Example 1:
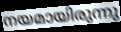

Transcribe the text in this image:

നയമായിരുന്നു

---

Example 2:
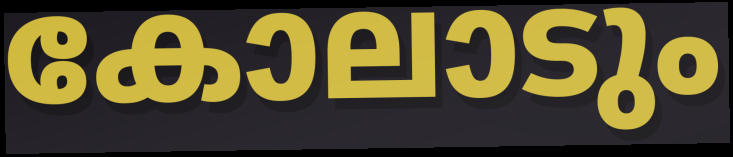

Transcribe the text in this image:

കോലാടും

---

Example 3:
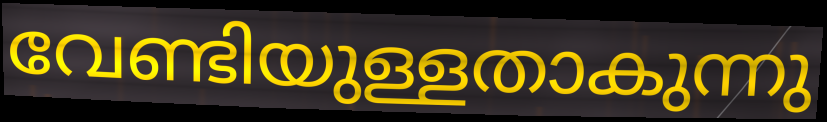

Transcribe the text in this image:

വേണ്ടിയുള്ളതാകുന്നു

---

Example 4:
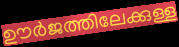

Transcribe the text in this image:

ഊർജത്തിലേക്കുള്ള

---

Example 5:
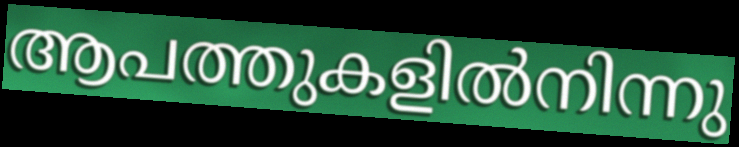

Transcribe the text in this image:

ആപത്തുകളിൽനിന്നു